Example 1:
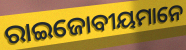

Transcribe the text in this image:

ରାଇଜୋବୀୟମାନେ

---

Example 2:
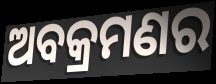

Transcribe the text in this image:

ଅବକ୍ରମଣର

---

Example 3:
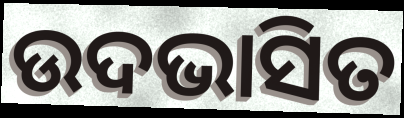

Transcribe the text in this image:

ଉଦଭାସିତ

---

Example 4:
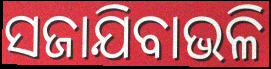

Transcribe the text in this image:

ସଜାଯିବାଭଳି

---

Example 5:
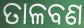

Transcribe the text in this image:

ତାଳବଣ